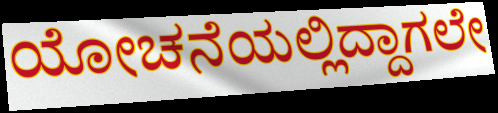
ಯೋಚನೆಯಲ್ಲಿದ್ದಾಗಲೇ